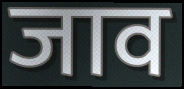
जाव